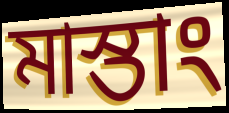
মাস্তাং